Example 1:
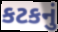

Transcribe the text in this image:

કટકનું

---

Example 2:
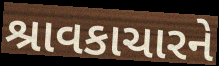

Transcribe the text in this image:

શ્રાવકાચારને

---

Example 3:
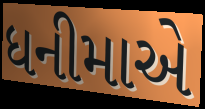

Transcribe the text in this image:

ધનીમાએ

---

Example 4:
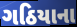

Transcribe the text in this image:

ગઠિયાના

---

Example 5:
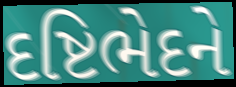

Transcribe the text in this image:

દષ્ટિભેદને